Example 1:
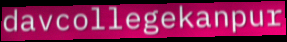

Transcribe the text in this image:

davcollegekanpur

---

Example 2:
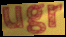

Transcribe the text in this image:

ugr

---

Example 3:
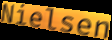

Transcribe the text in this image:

Nielsen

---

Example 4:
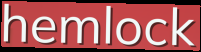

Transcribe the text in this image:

hemlock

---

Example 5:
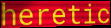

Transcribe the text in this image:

heretic